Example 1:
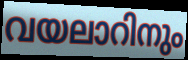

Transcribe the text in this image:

വയലാറിനും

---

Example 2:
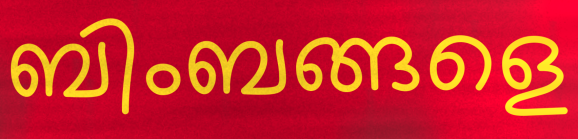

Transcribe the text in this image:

ബിംബങ്ങളെ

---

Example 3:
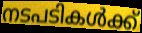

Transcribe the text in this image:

നടപടികൾക്ക്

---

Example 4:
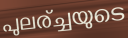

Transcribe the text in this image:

പുലര്ച്ചയുടെ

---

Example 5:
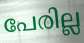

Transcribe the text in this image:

പേരില്ല